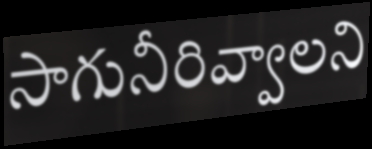
సాగునీరివ్వాలని